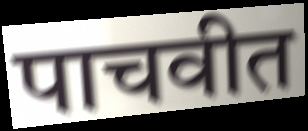
पाचवीत